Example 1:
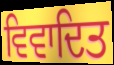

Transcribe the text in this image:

ਵਿਵਾਦਿਤ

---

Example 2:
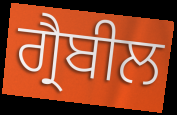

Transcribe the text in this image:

ਗ੍ਰੈਬੀਲ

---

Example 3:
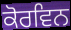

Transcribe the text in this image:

ਕੋਰਵਿਨ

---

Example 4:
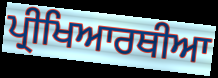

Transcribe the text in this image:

ਪ੍ਰੀਖਿਆਰਥੀਆ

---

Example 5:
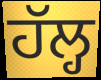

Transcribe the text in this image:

ਹੱਲ੍ਹ